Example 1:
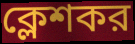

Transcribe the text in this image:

ক্লেশকর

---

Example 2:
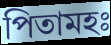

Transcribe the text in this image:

পিতামহঃ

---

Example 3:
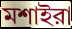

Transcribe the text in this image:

মশাইরা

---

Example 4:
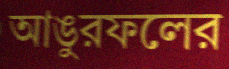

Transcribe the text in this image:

আঙুরফলের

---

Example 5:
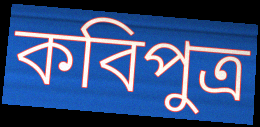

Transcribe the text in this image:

কবিপুত্র